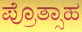
ಪ್ರೊತ್ಸಾಹ